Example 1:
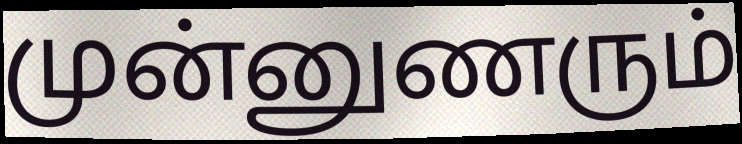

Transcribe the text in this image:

முன்னுணரும்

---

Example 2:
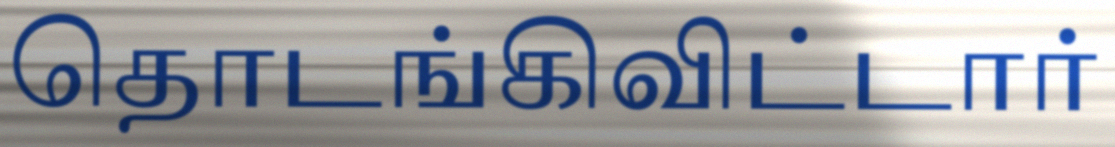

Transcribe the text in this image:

தொடங்கிவிட்டார்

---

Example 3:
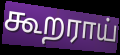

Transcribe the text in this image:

கூறராய்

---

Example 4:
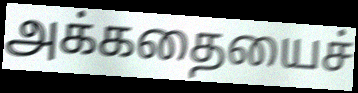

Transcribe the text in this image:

அக்கதையைச்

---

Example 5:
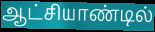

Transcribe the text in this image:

ஆட்சியாண்டில்